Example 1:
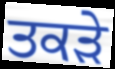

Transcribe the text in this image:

ਤਕੜੇ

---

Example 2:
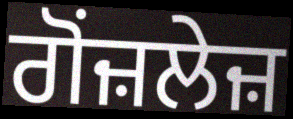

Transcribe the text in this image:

ਗੋਂਜ਼ਲੇਜ਼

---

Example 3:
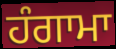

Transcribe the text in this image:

ਹੰਗਾਮਾ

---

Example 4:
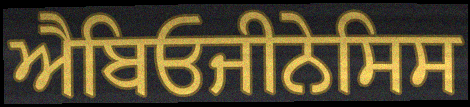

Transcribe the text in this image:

ਐਬਿਓਜੀਨੇਸਿਸ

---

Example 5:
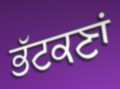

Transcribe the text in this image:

ਭੱਟਕਣਾਂ